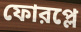
ফোরপ্লে